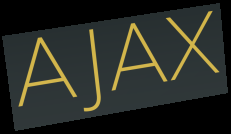
AJAX